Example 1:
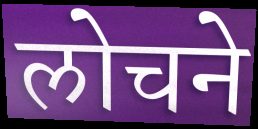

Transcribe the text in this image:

लोचने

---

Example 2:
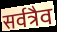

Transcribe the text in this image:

सर्वत्रैव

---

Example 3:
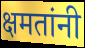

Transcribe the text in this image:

क्षमतांनी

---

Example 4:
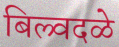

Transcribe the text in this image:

बिल्वदळे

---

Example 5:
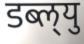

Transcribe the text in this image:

डब्ल्यु